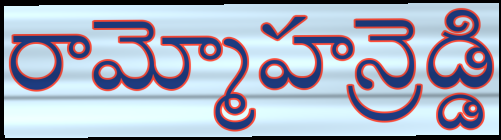
రామ్మోహన్రెడ్డి